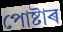
পোষ্টাৰ